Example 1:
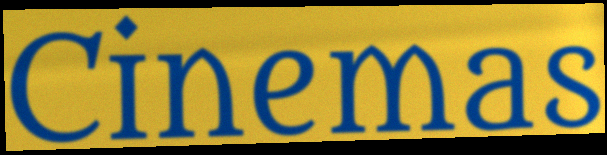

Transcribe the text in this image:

Cinemas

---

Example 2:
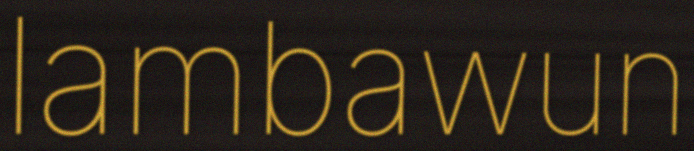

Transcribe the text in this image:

lambawun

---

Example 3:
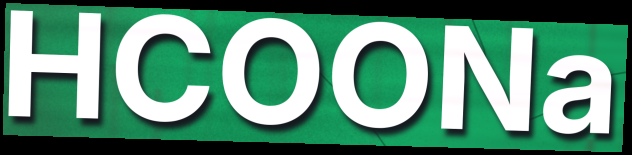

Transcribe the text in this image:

HCOONa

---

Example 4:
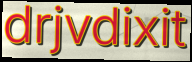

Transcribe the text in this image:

drjvdixit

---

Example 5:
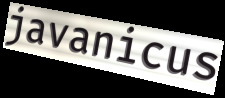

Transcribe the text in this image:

javanicus